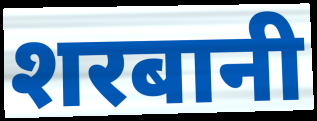
शरबानी